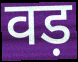
वड़